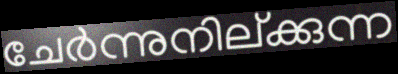
ചേർന്നുനില്ക്കുന്ന